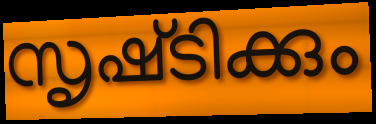
സൃഷ്‌ടിക്കും